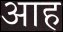
आह